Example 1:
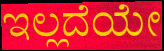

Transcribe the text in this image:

ಇಲ್ಲದೆಯೇ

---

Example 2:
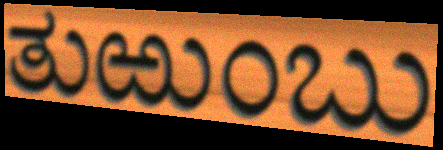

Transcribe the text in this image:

ತುಱುಂಬು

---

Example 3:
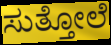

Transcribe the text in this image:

ಸುತ್ತೋಲೆ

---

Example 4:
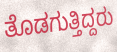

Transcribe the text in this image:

ತೊಡಗುತ್ತಿದ್ದರು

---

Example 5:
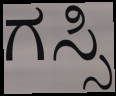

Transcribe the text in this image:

ಗಸ್ಸಿ